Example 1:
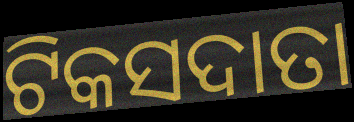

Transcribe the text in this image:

ଟିକସଦାତା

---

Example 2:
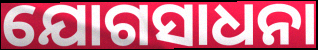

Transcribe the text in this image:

ଯୋଗସାଧନା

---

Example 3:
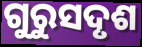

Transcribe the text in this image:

ଗୁରୁସଦୃଶ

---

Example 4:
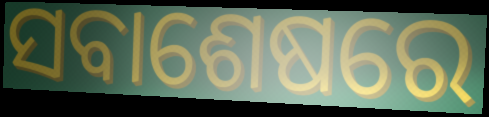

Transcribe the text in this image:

ସବାଶେଷରେ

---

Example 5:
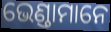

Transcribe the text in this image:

ଭେଣ୍ଡାମାନେ